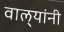
वाल्यांनी